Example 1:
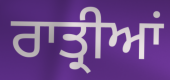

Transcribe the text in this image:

ਰਾਤ੍ਰੀਆਂ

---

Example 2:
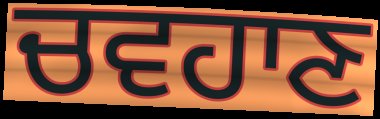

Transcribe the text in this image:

ਚਵਹਾਣ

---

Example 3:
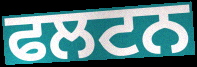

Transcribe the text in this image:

ਫਲਟਨ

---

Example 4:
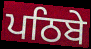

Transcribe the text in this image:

ਪਠਿਬੇ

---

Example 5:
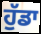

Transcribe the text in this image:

ਹੁੱਡਾ